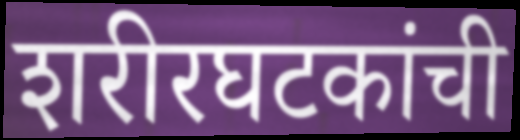
शरीरघटकांची